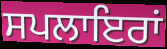
ਸਪਲਾਇਰਾਂ